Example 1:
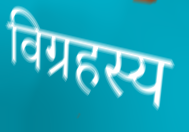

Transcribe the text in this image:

विग्रहस्य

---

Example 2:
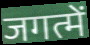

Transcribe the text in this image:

जगत्में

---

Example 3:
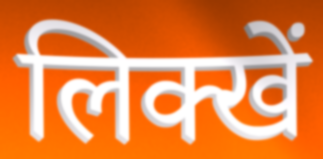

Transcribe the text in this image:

लिक्खें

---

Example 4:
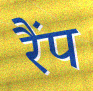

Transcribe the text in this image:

रैंप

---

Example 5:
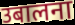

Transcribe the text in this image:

उबालना